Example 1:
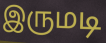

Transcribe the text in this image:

இருமடி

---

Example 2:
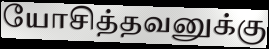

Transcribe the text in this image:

யோசித்தவனுக்கு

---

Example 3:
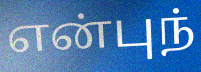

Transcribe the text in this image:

என்புந்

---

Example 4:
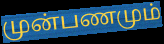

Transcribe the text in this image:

முன்பணமும்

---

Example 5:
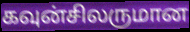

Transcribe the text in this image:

கவுன்சிலருமான